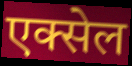
एक्‍सेल